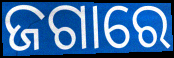
ଜଗାରେ